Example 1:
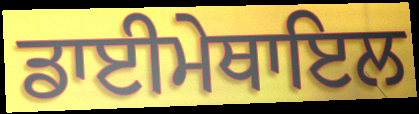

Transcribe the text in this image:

ਡਾਈਮੇਥਾਇਲ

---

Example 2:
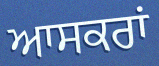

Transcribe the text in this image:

ਆਸਕਰਾਂ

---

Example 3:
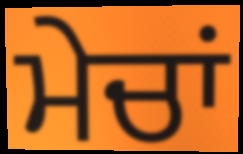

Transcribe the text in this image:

ਮੇਚਾਂ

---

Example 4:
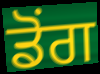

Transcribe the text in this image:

ਡੋਂਗ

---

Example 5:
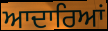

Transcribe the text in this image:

ਆਦਾਰਿਆਂ